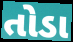
તોડા